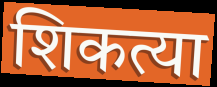
शिकत्या